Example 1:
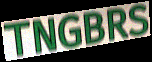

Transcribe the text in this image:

TNGBRS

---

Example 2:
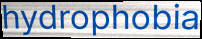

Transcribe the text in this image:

hydrophobia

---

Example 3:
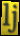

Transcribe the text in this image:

lj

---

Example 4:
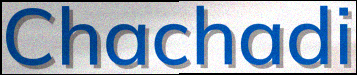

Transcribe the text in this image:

Chachadi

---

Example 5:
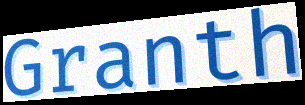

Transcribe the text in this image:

Granth